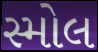
સ્મોલ